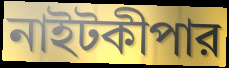
নাইটকীপার